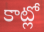
కాట్లో